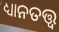
ଧ୍ୟାନତତ୍ତ୍ୱ